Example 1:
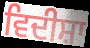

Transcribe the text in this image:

ਵਿਦੀਸ਼ਾ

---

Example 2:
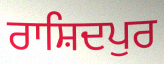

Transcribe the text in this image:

ਰਾਸ਼ਿਦਪੁਰ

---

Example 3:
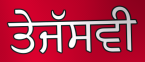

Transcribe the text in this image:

ਤੇਜੱਸਵੀ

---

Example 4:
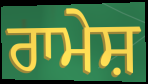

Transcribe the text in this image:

ਰਾਮੇਸ਼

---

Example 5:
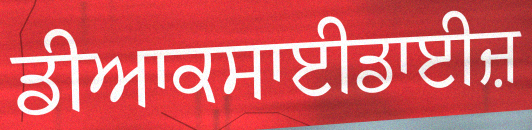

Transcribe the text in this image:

ਡੀਆਕਸਾਈਡਾਈਜ਼